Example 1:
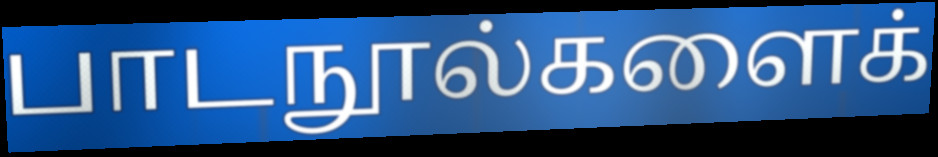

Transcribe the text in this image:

பாடநூல்களைக்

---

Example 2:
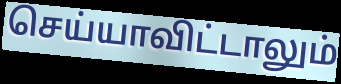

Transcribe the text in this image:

செய்யாவிட்டாலும்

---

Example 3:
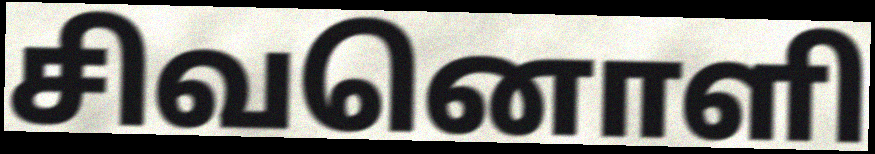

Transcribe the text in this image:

சிவனொளி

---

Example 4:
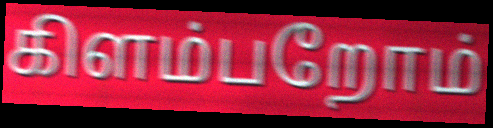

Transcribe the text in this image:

கிளம்பறோம்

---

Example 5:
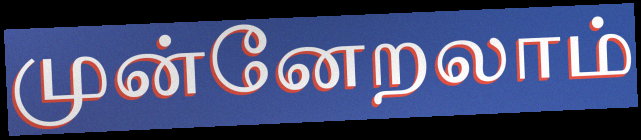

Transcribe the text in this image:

முன்னேறலாம்